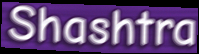
Shashtra